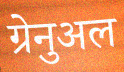
ग्रेनुअल